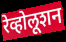
रेव्होलूशन